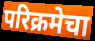
परिक्रमेचा